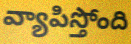
వ్యాపిస్తోంది